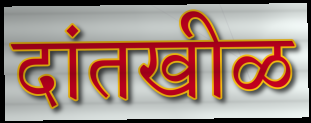
दांतखीळ